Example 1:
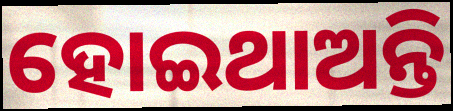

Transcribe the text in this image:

ହୋଇଥାଅନ୍ତି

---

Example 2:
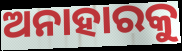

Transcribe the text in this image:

ଅନାହାରକୁ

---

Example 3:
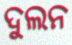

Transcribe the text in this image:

ଦୁଲନ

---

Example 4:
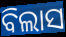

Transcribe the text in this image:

ବିଲାସ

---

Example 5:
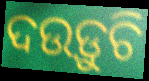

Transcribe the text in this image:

ଦଉଡ଼ୁଚି